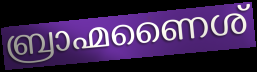
ബ്രാഹ്മണൈശ്